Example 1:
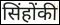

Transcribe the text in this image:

सिंहोंकी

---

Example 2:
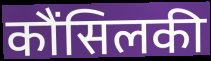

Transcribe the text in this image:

कौंसिलकी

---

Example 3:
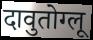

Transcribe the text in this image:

दावुतोग्लू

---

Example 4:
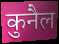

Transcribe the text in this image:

कुनैल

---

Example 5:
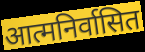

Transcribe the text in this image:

आत्मनिर्वासित